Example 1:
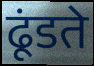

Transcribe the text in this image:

ढूंडते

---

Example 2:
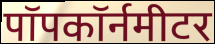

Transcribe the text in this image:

पॉपकॉर्नमीटर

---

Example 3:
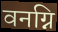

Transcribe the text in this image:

वनग्नि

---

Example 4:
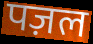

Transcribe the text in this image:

पज़ल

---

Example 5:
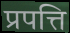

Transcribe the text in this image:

प्रपत्ति